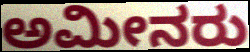
ಅಮೀನರು